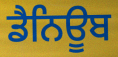
ਡੈਨਿਊਬ